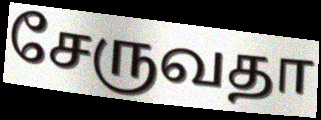
சேருவதா